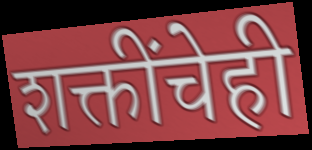
शक्तींचेही